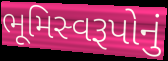
ભૂમિસ્વરૂપોનું